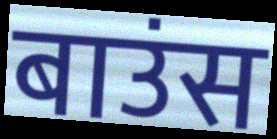
बाउंस